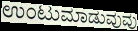
ಉಂಟುಮಾಡುವುವು